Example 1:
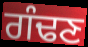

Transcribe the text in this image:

ਗੰਢਣ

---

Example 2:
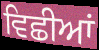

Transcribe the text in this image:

ਵਿਛੀਆਂ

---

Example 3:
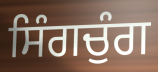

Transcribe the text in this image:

ਸਿੰਗਚੁੰਗ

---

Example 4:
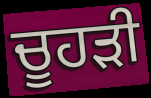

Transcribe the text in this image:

ਚੂਹੜੀ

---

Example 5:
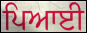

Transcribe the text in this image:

ਪਿਆਈ